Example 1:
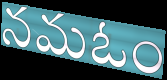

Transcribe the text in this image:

నమఓం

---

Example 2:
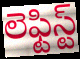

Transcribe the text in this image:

లెఫ్టిస్ట్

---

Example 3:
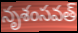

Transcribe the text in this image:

నృశంసవత్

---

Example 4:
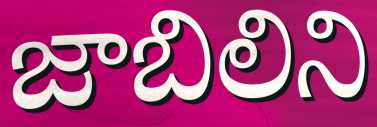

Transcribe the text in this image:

జాబిలిని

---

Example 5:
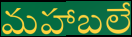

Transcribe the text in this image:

మహాబలే